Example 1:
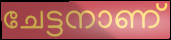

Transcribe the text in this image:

ചേട്ടനാണ്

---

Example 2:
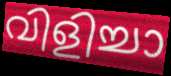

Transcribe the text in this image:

വിളിച്ചാ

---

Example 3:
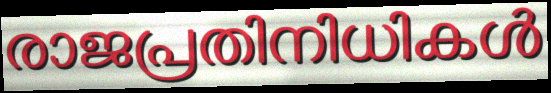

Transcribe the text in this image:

രാജപ്രതിനിധികൾ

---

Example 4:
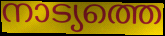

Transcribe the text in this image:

നാട്യത്തെ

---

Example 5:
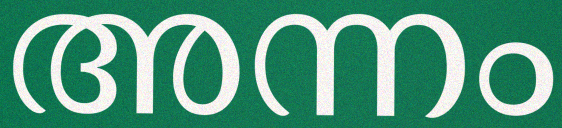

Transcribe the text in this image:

അന്നം